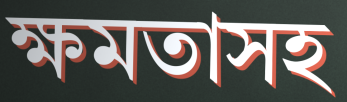
ক্ষমতাসহ